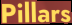
Pillars